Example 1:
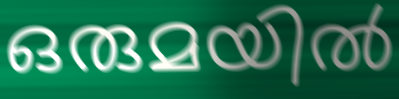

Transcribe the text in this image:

ഒരുമയിൽ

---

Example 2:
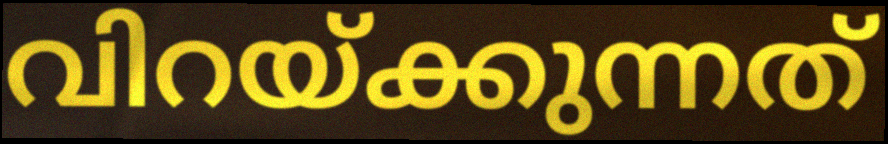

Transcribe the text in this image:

വിറയ്ക്കുന്നത്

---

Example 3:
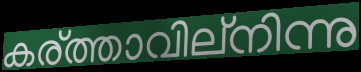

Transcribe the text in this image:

കര്ത്താവില്നിന്നു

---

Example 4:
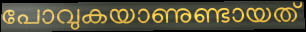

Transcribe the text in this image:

പോവുകയാണുണ്ടായത്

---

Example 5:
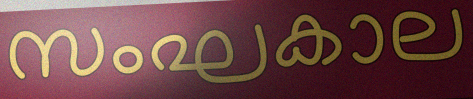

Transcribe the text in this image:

സംഘകാല